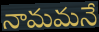
నామమనే